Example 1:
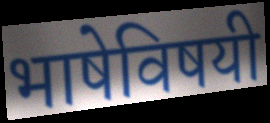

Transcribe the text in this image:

भाषेविषयी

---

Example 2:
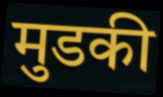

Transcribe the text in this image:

मुडकी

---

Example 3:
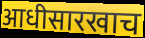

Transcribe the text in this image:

आधीसारखाच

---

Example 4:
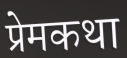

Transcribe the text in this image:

प्रेमकथा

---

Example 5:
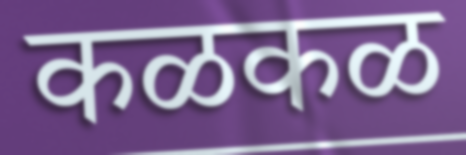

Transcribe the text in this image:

कळकळ